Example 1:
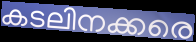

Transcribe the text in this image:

കടലിനക്കരെ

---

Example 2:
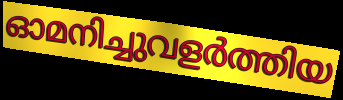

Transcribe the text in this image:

ഓമനിച്ചുവളർത്തിയ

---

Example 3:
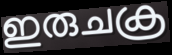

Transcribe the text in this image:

ഇരുചക്ര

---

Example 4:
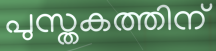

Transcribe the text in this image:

പുസ്തകത്തിന്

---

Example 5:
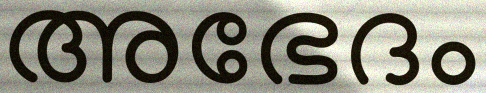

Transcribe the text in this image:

അഭേദം